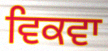
ਵਿਕਵਾ